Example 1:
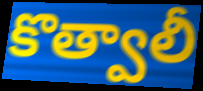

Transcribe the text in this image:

కొత్వాలీ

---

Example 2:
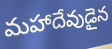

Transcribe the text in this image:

మహాదేవుడైన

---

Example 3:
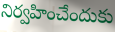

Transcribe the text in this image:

నిర్వహించేందుకు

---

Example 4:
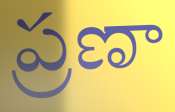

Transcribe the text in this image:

ప్రణా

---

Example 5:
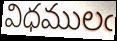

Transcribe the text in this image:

విధములఁ